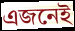
এজনেই